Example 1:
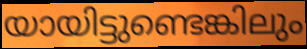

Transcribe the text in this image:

യായിട്ടുണ്ടെങ്കിലും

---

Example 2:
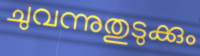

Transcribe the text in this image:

ചുവന്നുതുടുക്കും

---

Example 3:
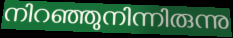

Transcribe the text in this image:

നിറഞ്ഞുനിന്നിരുന്നു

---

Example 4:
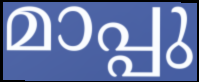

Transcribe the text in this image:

മാപ്പു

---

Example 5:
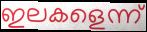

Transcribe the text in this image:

ഇലകളെന്ന്